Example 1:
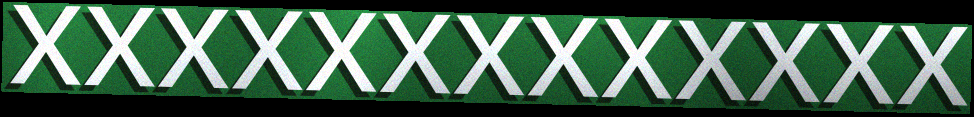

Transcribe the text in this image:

xxxxxxxxxxxxx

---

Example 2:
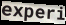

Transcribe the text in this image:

experi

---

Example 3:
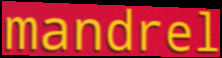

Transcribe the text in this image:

mandrel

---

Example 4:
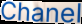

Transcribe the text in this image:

Chanel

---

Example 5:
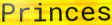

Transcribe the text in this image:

Princes